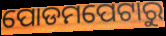
ପୋଡମପେଟାରୁ